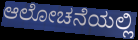
ಆಲೋಚನೆಯಲ್ಲಿ